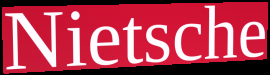
Nietsche